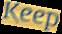
Keep